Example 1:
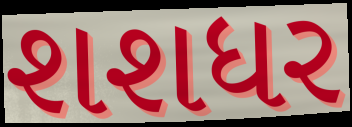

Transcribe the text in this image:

શશધર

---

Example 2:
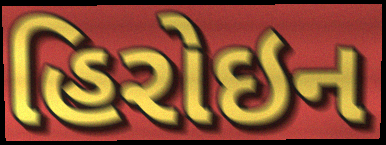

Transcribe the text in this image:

હિરોઇન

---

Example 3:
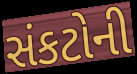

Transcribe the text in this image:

સંકટોની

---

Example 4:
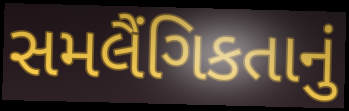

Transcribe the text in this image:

સમલૈંગિકતાનું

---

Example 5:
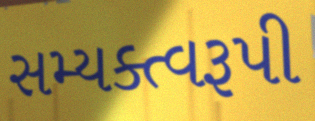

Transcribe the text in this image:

સમ્યક્ત્વરૂપી